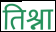
तिश्ना